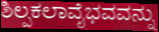
ಶಿಲ್ಪಕಲಾವೈಭವವನ್ನು